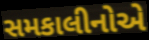
સમકાલીનોએ